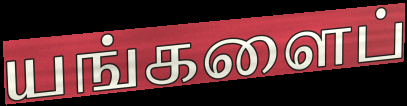
யங்களைப்